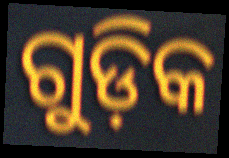
ଗୁଡ଼ିକ